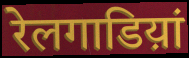
रेलगाडिय़ां